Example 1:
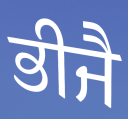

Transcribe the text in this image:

ਭੀਜੈ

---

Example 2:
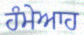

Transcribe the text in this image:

ਹੰਮੇਆਹ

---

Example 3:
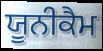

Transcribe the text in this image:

ਯੂਨੀਕੈਮ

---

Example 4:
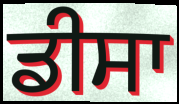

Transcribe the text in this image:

ਡੀਸਾ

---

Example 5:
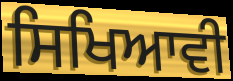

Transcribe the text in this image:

ਸਿਖਿਆਵੀ